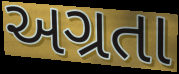
અગ્રતા